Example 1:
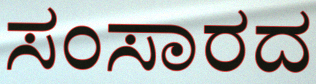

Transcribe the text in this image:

ಸಂಸಾರದ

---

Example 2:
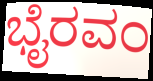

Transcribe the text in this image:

ಭೈರವಂ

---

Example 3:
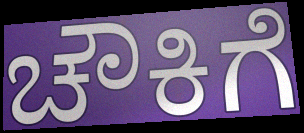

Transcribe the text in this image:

ಚೌಕಿಗೆ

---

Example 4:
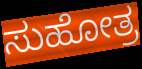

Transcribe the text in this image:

ಸುಹೋತ್ರ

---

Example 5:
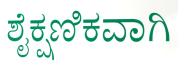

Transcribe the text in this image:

ಶೈಕ್ಷಣಿಕವಾಗಿ